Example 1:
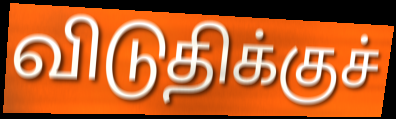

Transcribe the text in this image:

விடுதிக்குச்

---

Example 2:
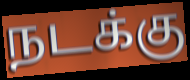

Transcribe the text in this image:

நடக்கு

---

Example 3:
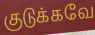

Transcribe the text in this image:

குடுக்கவே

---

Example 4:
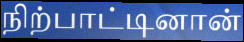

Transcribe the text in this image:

நிற்பாட்டினான்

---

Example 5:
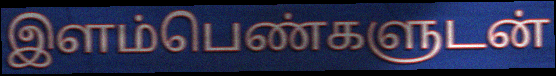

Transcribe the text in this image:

இளம்பெண்களுடன்